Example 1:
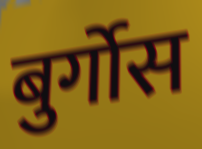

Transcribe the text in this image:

बुर्गोस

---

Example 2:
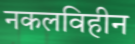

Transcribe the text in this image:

नकलविहीन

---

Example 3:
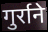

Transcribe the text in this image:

गुर्राने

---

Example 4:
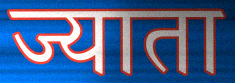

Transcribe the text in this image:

ज्याता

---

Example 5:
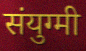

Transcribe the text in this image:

संयुग्मी